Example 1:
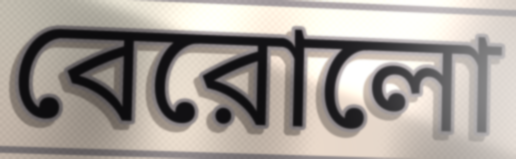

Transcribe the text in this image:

বেরোলো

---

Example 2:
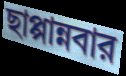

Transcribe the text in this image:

ছাপ্পান্নবার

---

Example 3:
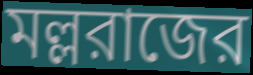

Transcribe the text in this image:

মল্লরাজের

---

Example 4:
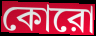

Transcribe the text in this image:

কোরো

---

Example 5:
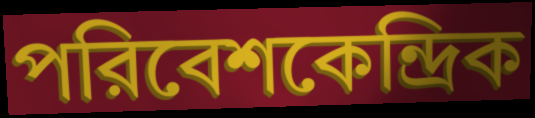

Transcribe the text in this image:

পরিবেশকেন্দ্রিক